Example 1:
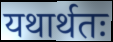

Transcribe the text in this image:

यथार्थतः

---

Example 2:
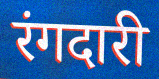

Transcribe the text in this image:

रंगदारी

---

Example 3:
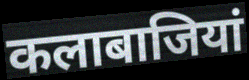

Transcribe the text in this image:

कलाबाजियां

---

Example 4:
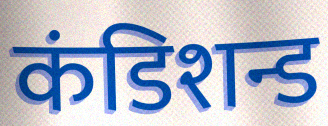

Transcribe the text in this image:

कंडिशन्ड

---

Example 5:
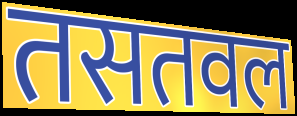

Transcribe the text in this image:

तसतवल